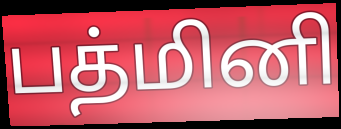
பத்மினி